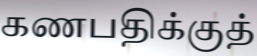
கணபதிக்குத்